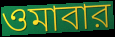
ওমাবার